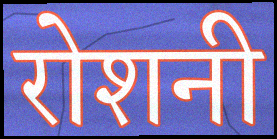
रोशनी